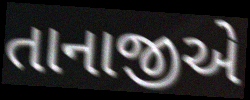
તાનાજીએ